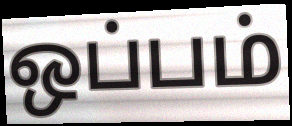
ஒப்பம்